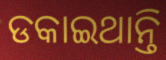
ଡକାଇଥାନ୍ତି